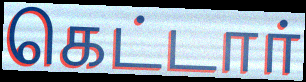
கெட்டார்